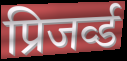
प्रिजर्व्ड